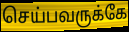
செய்பவருக்கே